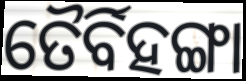
ତୈର୍ବିହଙ୍ଗା